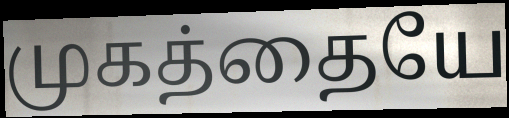
முகத்தையே